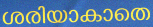
ശരിയാകാതെ